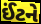
ઈંટને